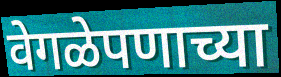
वेगळेपणाच्या